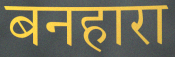
बनहारा